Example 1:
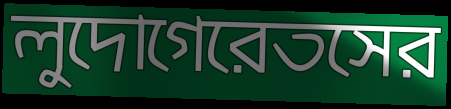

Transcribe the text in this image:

লুদোগেরেতসের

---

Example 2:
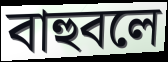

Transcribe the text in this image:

বাহুবলে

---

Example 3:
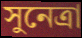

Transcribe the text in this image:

সুনেত্রা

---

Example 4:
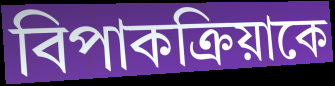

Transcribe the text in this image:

বিপাকক্রিয়াকে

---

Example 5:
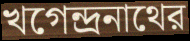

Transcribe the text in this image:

খগেন্দ্রনাথের